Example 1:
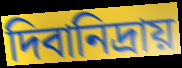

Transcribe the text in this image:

দিবানিদ্রায়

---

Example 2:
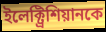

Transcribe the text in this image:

ইলেক্ট্রিশিয়ানকে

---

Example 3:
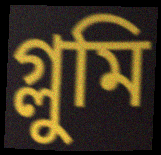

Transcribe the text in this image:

গ্লুমি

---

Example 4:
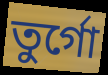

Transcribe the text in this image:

তুর্গো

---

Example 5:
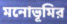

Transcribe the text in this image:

মনোভূমির